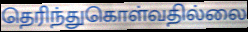
தெரிந்துகொள்வதில்லை